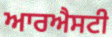
ਆਰਐਸਟੀ